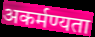
अकर्मण्यता